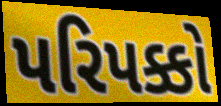
પરિપક્કો